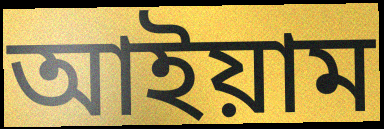
আইয়াম